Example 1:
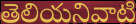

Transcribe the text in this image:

తెలియనివాటి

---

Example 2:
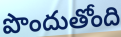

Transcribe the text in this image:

పొందుతోంది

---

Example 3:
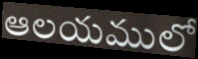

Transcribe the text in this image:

ఆలయములో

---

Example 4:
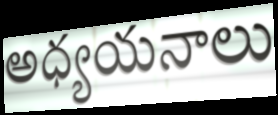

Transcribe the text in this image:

అధ్యయనాలు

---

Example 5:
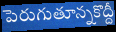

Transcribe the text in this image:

పెరుగుతూన్నకొద్దీ